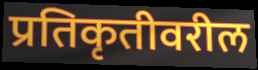
प्रतिकृतीवरील